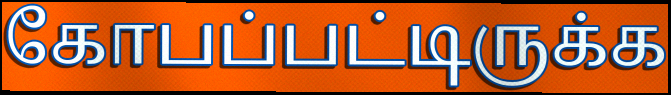
கோபப்பட்டிருக்க